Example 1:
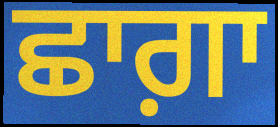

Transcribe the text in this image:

ਛਾਗ਼ਾ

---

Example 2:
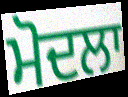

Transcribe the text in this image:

ਮੋਦਲਾ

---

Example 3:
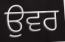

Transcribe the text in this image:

ਉਵਰ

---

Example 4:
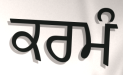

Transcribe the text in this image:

ਕਰਮੰ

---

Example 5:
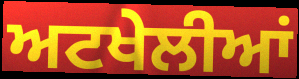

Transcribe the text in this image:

ਅਟਖੇਲੀਆਂ